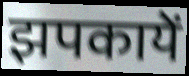
झपकायें